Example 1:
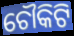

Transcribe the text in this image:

ଚୌକିଟି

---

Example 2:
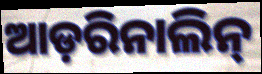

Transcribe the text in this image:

ଆଡ଼ରିନାଲିନ୍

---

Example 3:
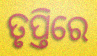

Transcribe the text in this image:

ତୃପ୍ତିରେ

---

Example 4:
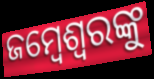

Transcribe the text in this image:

ଜମ୍ବେଶ୍ୱରଙ୍କୁ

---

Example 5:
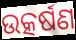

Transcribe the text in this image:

ଉତ୍କର୍ଷଣ